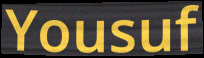
Yousuf